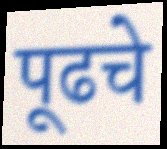
पूढचे